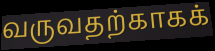
வருவதற்காகக்